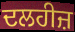
ਦਲਹੀਜ਼